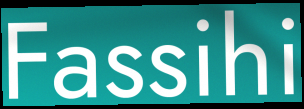
Fassihi